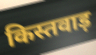
किस्तवाड़